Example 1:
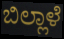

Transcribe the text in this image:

ಬಿಲ್ಲಾಳೆ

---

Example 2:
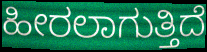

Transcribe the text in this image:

ಹೀರಲಾಗುತ್ತಿದೆ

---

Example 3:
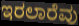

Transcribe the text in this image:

ಇರಲಾರೆವು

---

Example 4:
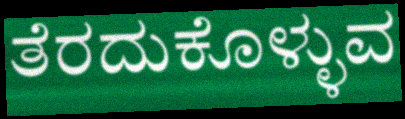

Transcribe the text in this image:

ತೆರದುಕೊಳ್ಳುವ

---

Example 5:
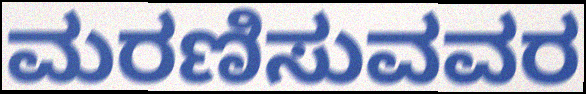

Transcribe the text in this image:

ಮರಣಿಸುವವರ